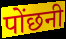
पोंछनी